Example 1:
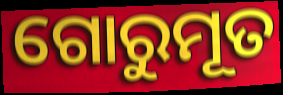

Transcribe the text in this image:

ଗୋରୁମୂତ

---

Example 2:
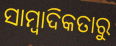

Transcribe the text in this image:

ସାମ୍ବାଦିକତାରୁ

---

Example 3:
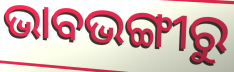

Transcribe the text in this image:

ଭାବଭଙ୍ଗୀରୁ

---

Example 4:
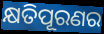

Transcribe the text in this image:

କ୍ଷତିପୂରଣର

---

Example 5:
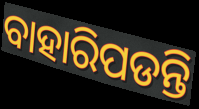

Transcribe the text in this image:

ବାହାରିପଡନ୍ତି